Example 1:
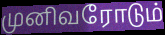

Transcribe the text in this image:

முனிவரோடும்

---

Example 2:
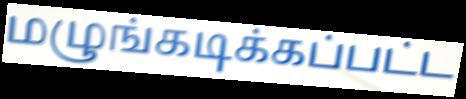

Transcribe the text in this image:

மழுங்கடிக்கப்பட்ட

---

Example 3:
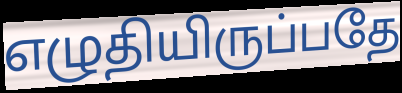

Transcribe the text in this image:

எழுதியிருப்பதே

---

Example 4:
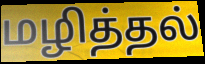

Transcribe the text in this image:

மழித்தல்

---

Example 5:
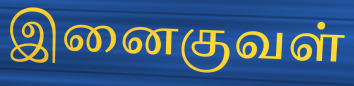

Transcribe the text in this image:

இனைகுவள்